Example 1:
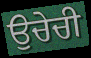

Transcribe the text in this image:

ਉਚੇਚੀ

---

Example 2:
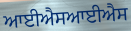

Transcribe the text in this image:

ਆਈਐਸਆਈਐਸ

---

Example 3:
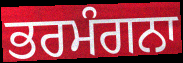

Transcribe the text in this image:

ਭਰਮੰਗਨਾ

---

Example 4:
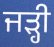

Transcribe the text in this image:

ਜੜ੍ਹੀ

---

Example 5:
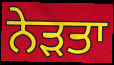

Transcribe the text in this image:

ਨੇੜਤਾ